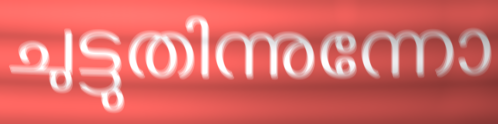
ചുട്ടുതിന്നുന്നോ